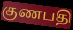
குணபதி